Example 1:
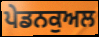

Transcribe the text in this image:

ਪੇਡਨਕੁਅਲ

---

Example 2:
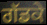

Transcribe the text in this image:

ਗੱਡਕੇ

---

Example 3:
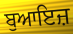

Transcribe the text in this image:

ਬੁਆਇਜ਼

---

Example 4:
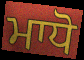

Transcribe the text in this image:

ਮਾਧੋ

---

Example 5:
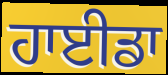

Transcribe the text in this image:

ਹਾਈਡਾ